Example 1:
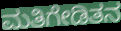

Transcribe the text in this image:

ಮತಿಗೇಡಿತನ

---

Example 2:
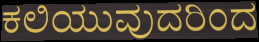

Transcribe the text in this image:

ಕಲಿಯುವುದರಿಂದ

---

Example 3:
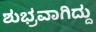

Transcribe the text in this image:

ಶುಭ್ರವಾಗಿದ್ದು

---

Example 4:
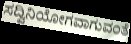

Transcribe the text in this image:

ಸದ್ವಿನಿಯೋಗವಾಗುವಂತೆ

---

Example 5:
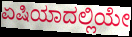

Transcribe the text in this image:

ಏಷಿಯಾದಲ್ಲಿಯೇ